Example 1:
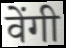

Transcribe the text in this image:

वेंगी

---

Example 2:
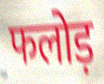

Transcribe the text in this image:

फलोड़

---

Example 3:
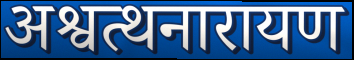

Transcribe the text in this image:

अश्वत्थनारायण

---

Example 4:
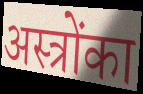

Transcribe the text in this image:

अस्त्रोंका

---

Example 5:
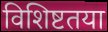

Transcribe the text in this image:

विशिष्टतया